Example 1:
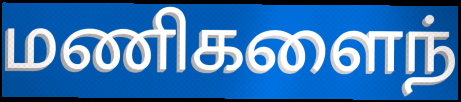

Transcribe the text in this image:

மணிகளைந்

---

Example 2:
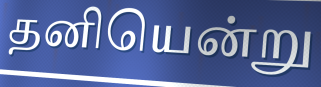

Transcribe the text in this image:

தனியென்று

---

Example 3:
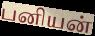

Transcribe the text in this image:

பனியன்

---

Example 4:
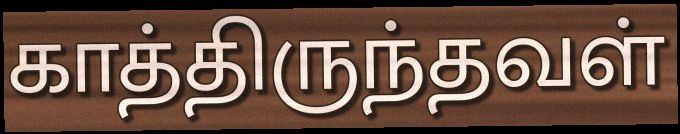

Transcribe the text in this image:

காத்திருந்தவள்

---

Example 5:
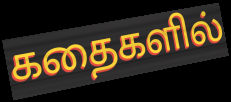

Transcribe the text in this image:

கதைகளில்